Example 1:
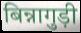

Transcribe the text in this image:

बिन्नागुड़ी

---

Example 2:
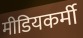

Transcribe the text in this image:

मीडियकर्मी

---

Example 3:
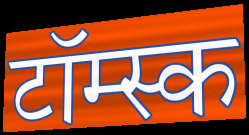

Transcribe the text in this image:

टॉम्स्क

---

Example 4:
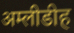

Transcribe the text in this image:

अम्लीडीह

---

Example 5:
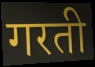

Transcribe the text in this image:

गरती